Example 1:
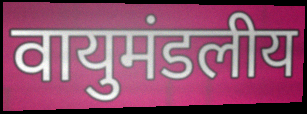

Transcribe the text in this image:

वायुमंडलीय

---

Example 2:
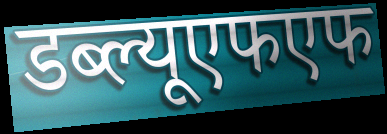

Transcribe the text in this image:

डब्ल्यूएफएफ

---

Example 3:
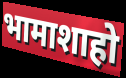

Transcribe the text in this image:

भामाशाहो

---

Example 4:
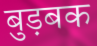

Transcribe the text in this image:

बुड़बक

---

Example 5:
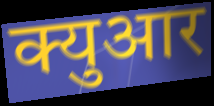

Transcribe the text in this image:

क्युआर